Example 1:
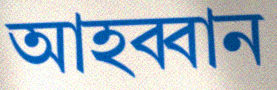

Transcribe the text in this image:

আহব্বান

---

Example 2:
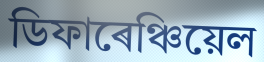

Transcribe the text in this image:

ডিফাৰেঞ্চিয়েল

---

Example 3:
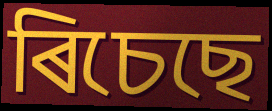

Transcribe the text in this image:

ৰিচেছে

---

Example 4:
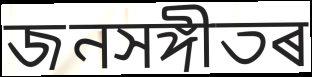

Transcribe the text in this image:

জনসঙ্গীতৰ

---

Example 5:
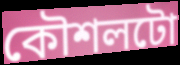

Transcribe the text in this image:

কৌশলটো